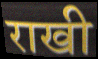
राखी